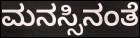
ಮನಸ್ಸಿನಂತೆ